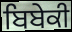
ਬਿਬੇਕੀ